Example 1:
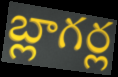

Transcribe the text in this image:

బ్లాగర్ల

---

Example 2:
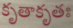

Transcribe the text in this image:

కృతాకృతః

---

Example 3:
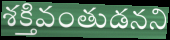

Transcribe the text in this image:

శక్తివంతుడనని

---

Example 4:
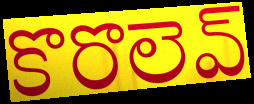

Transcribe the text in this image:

కొరొలెవ్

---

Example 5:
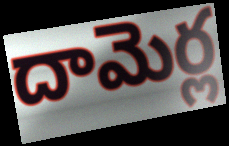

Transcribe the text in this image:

దామెర్ల